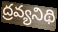
ద్రవ్యనిథి